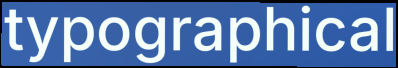
typographical